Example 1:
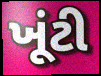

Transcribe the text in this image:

ખૂંટી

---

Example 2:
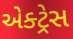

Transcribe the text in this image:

એક્ટ્રેસ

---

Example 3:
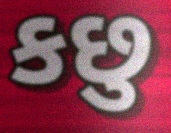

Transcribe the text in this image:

કછુ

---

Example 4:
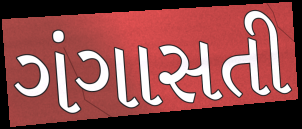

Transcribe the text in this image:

ગંગાસતી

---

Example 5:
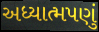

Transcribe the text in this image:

અધ્યાત્મપણું